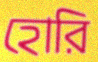
হোরি